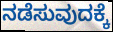
ನಡೆಸುವುದಕ್ಕೆ